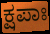
ಕ್ಷಪಾಃ